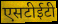
एसटीईटी